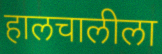
हालचालीला